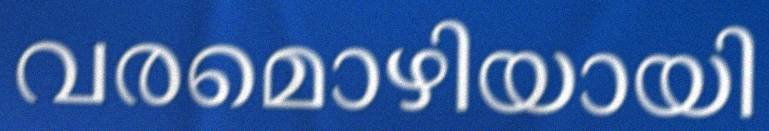
വരമൊഴിയായി